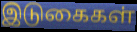
இடுகைகள்